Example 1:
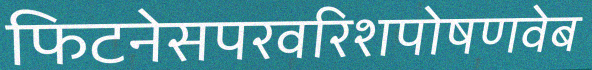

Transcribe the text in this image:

फिटनेसपरवरिशपोषणवेब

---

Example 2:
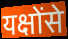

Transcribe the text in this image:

यक्षोंसे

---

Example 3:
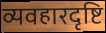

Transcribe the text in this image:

व्यवहारदृष्टि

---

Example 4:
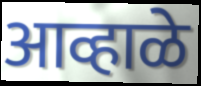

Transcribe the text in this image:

आव्हाळे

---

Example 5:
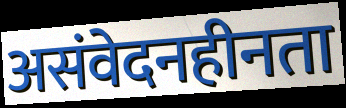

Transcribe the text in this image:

असंवेदनहीनता